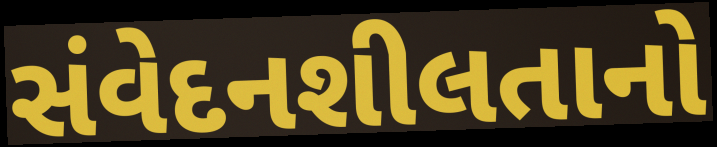
સંવેદનશીલતાનો